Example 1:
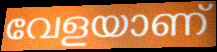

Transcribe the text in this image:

വേളയാണ്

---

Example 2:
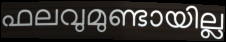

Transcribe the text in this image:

ഫലവുമുണ്ടായില്ല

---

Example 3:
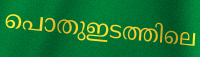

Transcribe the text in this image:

പൊതുഇടത്തിലെ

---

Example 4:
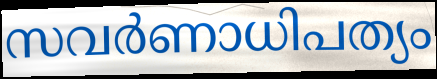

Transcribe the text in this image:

സവർണാധിപത്യം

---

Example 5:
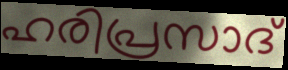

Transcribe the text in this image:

ഹരിപ്രസാദ്